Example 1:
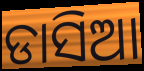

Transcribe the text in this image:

ଡାସିଆ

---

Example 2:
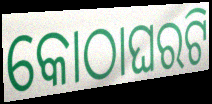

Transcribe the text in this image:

କୋଠାଘରଟି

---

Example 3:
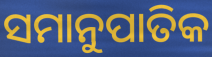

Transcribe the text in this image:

ସମାନୁପାତିକ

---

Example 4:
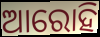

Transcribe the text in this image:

ଆରୋହି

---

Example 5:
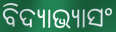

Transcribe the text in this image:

ବିଦ୍ୟାଭ୍ୟାସଂ